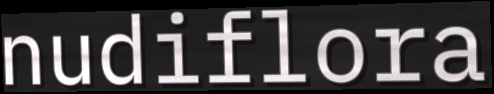
nudiflora